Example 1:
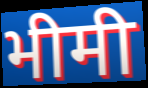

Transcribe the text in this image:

भीमी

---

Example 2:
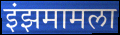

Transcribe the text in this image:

इंझमामला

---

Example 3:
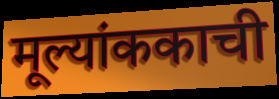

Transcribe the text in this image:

मूल्यांककाची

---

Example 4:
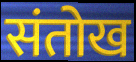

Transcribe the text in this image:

संतोख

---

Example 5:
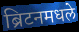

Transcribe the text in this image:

ब्रिटनमधले